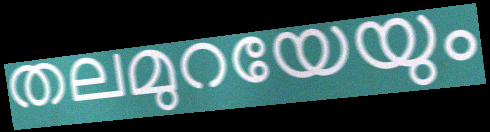
തലമുറയേയും